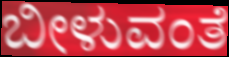
ಬೀಳುವಂತೆ